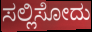
ಸಲ್ಲಿಸೋದು